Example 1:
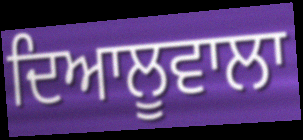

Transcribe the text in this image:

ਦਿਆਲੂਵਾਲਾ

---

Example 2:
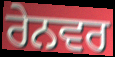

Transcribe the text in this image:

ਰੇਨਵਰ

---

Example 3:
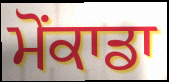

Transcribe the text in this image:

ਮੋਂਕਾਡਾ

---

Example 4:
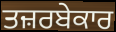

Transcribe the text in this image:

ਤਜ਼ਰਬੇਕਾਰ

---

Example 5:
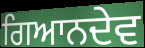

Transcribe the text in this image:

ਗਿਆਨਦੇਵ